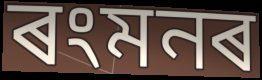
ৰংমনৰ